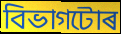
বিভাগটোৰ